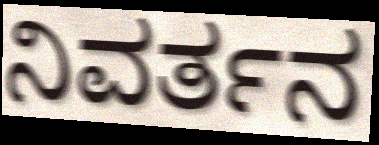
ನಿವರ್ತನ